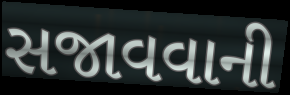
સજાવવાની